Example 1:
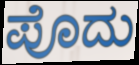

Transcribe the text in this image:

ಪೊದು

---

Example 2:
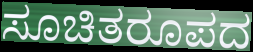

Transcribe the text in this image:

ಸೂಚಿತರೂಪದ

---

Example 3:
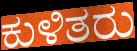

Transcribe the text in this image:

ಕುಳಿತರು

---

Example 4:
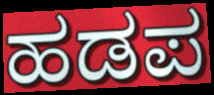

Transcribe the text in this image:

ಹಡಪ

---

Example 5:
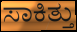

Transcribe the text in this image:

ಸಾಕಿತ್ತು